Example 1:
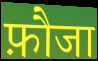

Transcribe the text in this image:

फ़ौजा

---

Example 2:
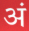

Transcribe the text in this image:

अं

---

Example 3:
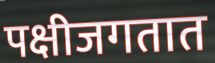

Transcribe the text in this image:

पक्षीजगतात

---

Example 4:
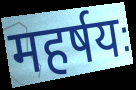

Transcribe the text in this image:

महर्षयः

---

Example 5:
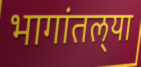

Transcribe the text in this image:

भागांतल्या